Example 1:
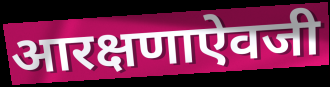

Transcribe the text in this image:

आरक्षणाऐवजी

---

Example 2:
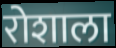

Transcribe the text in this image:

रोशाला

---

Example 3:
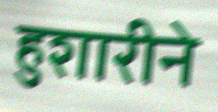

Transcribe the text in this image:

हुशारीने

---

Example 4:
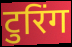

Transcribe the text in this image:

टुरिंग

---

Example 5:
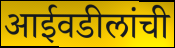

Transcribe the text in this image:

आईवडीलांची